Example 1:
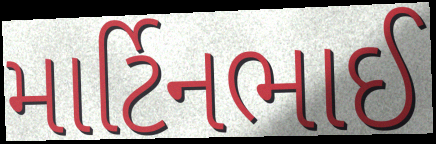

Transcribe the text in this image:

માર્ટિનભાઈ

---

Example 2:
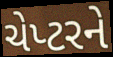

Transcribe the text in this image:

ચેપ્ટરને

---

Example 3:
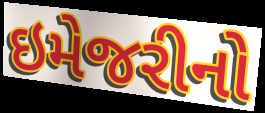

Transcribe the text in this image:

ઇમેજરીનો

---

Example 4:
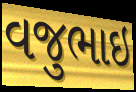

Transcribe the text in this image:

વજુભાઇ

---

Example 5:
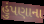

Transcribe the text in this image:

હુંપણાના